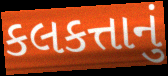
કલકત્તાનું